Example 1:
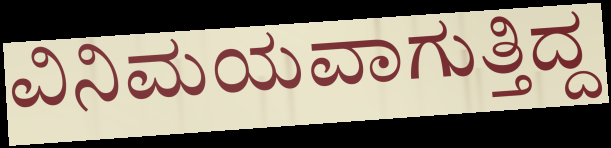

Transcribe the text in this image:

ವಿನಿಮಯವಾಗುತ್ತಿದ್ದ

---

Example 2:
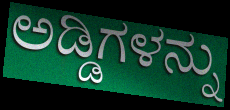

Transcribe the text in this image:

ಅಡ್ಡಿಗಳನ್ನು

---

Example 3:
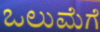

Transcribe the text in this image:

ಒಲುಮೆಗೆ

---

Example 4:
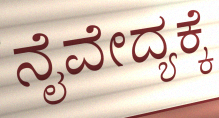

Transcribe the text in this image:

ನೈವೇದ್ಯಕ್ಕೆ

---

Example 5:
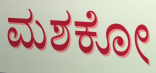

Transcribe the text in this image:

ಮಶಕೋ